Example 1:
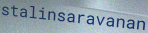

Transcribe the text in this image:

stalinsaravanan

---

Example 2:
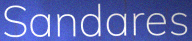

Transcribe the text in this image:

Sandares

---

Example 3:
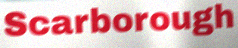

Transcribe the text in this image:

Scarborough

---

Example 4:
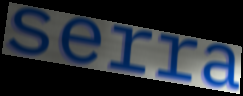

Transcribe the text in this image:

serra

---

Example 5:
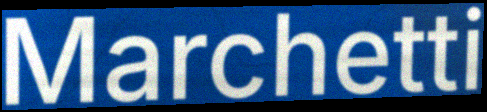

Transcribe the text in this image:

Marchetti